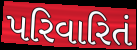
પરિવારિતં